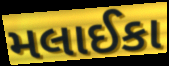
મલાઈકા